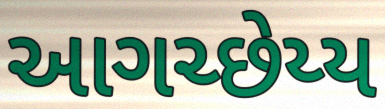
આગચ્છેય્ય